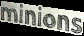
minions